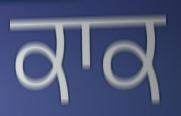
ਕਾਕ